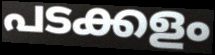
പടക്കളം